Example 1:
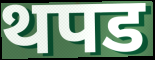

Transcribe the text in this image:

थपड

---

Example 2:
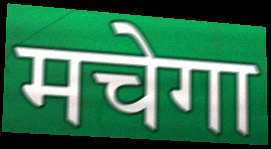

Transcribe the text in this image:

मचेगा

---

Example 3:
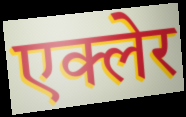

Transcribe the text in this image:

एक्लेर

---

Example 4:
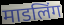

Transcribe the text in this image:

माडलिंग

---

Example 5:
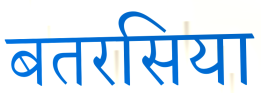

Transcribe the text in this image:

बतरसिया